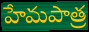
హేమపాత్ర